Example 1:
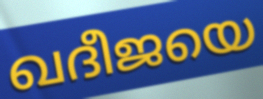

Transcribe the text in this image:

ഖദീജയെ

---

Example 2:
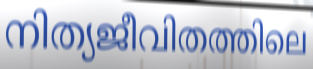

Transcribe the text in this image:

നിത്യജീവിതത്തിലെ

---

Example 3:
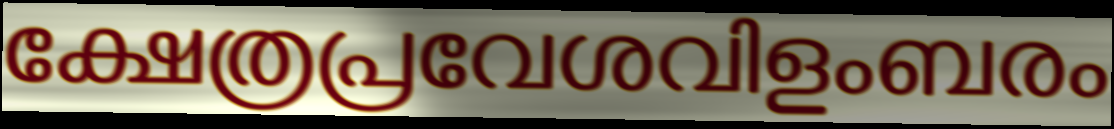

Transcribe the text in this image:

ക്ഷേത്രപ്രവേശവിളംബരം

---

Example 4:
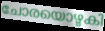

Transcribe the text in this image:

ചോരയൊഴുകി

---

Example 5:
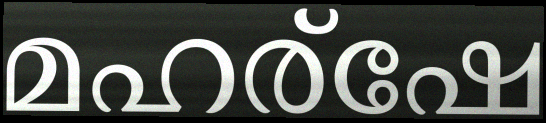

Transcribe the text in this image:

മഹര്ഷേ